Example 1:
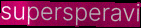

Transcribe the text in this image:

supersperavi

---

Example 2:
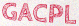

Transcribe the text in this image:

GACPL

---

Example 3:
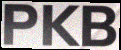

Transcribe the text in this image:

PKB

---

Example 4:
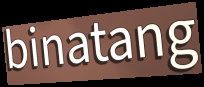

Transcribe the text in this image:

binatang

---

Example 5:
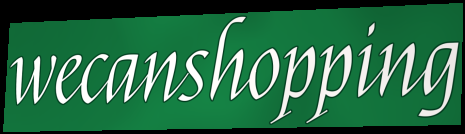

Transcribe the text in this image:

wecanshopping